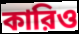
কারিও